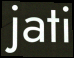
jati